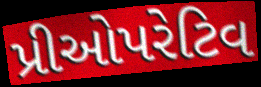
પ્રીઓપરેટિવ